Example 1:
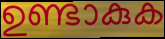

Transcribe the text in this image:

ഉണ്ടാകുക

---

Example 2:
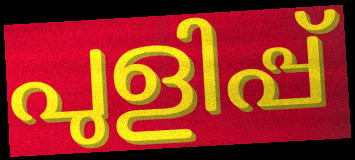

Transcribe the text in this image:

പുളിപ്പ്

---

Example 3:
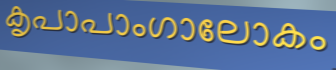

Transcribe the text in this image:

കൃപാപാംഗാലോകം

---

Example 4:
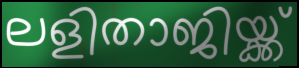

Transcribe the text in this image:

ലളിതാജിയ്ക്ക്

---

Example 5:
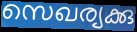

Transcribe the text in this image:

സെഖര്യക്കു